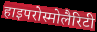
हाइपरोस्मोलैरिटी